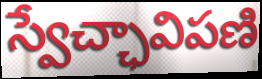
స్వేచ్ఛావిపణి